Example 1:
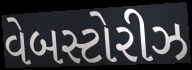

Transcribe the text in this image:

વેબસ્ટોરીઝ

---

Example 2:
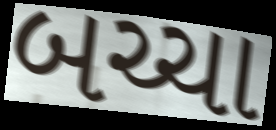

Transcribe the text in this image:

બચ્ચા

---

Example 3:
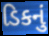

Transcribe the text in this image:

ડિકનું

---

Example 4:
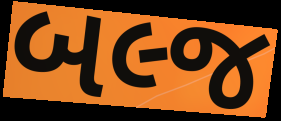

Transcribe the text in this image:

બલ્જ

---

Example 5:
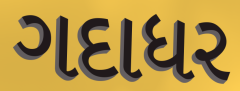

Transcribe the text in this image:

ગદાધર